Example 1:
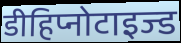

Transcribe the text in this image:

डीहिप्नोटाइज्ड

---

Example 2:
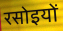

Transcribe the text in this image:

रसोइयों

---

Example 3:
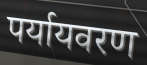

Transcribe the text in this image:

पर्यायवरण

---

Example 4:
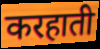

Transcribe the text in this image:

करहाती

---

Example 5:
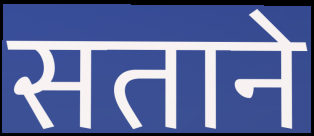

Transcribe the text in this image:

सताने